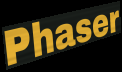
Phaser